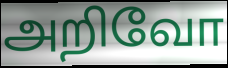
அறிவோ